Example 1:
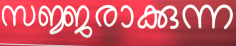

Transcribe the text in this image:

സജ്ജരാക്കുന്ന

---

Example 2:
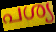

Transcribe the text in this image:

പശ്യ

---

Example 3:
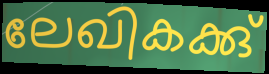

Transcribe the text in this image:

ലേഖികക്കു്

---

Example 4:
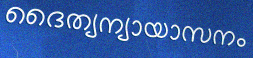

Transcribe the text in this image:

ദൈത്യന്യായാസനം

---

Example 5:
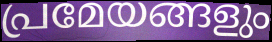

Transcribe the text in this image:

പ്രമേയങ്ങളും